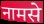
नामसे